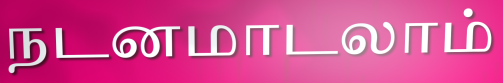
நடனமாடலாம்